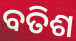
ବତିଶ